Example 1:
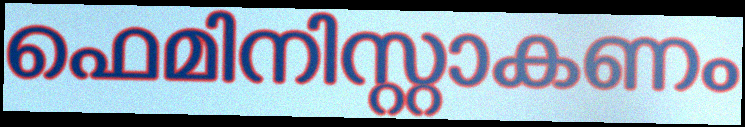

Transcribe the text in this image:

ഫെമിനിസ്റ്റാകണം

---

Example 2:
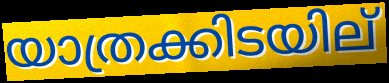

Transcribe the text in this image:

യാത്രക്കിടയില്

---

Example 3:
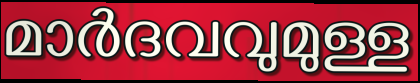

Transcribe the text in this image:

മാർദവവുമുള്ള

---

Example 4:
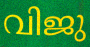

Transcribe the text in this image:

വിജു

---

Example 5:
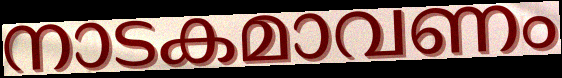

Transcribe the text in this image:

നാടകമാവണം